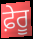
ਫ਼ੇਰੂ